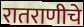
रातराणीचे